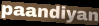
paandiyan